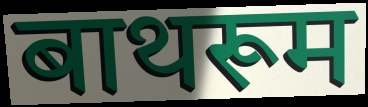
बाथरूम